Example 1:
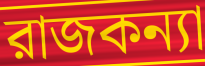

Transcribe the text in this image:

রাজকন্যা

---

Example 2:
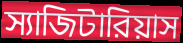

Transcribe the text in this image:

স্যাজিটারিয়াস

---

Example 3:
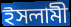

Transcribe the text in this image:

ইসলামী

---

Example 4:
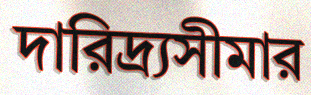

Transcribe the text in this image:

দারিদ্র্যসীমার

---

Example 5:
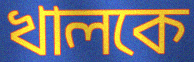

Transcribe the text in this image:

খালকে